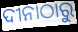
ଦୀନାଠାରୁ